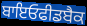
ਬਾਇਓਫੀਡਬੈਕ